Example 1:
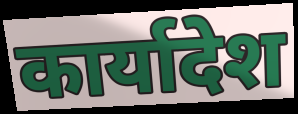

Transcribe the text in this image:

कार्यादेश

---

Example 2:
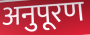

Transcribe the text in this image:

अनुपूरण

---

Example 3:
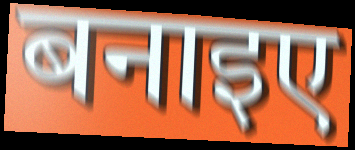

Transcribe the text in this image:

बनाइए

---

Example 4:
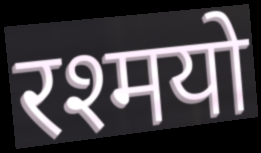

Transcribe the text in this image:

रश्मयो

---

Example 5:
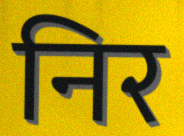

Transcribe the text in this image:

निर